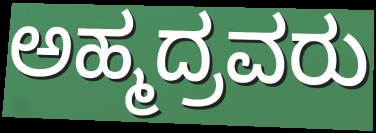
ಅಹ್ಮದ್ರವರು